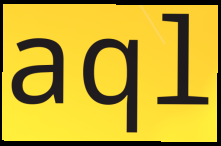
aql